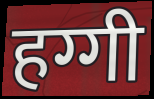
हग्गी